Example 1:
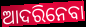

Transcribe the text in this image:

ଆଦରିନେବା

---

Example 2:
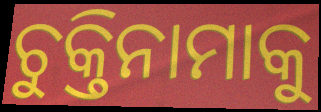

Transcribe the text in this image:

ଚୁକ୍ତିନାମାକୁ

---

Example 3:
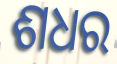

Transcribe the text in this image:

ଶଧର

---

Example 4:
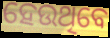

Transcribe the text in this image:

ହେଉଥିବେ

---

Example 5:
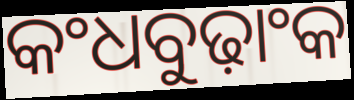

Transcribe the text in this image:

କଂଧବୁଢ଼ାଂକ